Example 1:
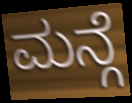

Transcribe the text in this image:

ಮನ್ಗೆ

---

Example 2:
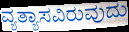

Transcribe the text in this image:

ವ್ಯತ್ಯಾಸವಿರುವುದು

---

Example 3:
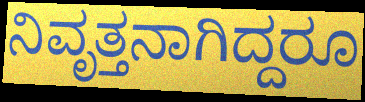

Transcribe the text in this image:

ನಿವೃತ್ತನಾಗಿದ್ದರೂ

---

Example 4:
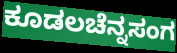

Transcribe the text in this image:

ಕೂಡಲಚೆನ್ನಸಂಗ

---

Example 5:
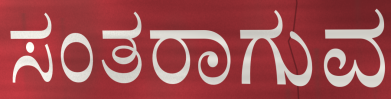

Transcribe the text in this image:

ಸಂತರಾಗುವ